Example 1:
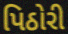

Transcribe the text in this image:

પિઠોરી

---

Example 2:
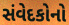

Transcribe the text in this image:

સંવેદકોનો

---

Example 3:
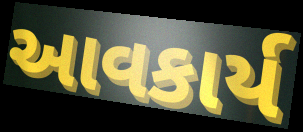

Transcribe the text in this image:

આવકાર્ય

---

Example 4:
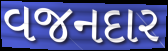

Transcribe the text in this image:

વજનદાર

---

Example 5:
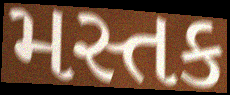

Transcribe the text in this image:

મસ્તક